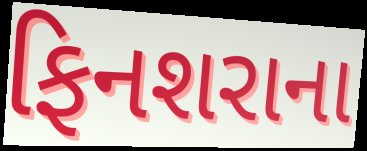
ફિનશરાના